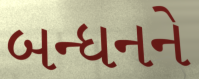
બન્ધનને